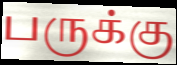
பருக்கு